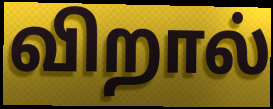
விறால்